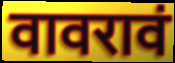
वावरावं